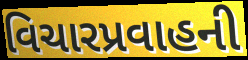
વિચારપ્રવાહની